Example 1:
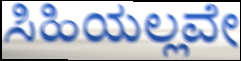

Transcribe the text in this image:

ಸಿಹಿಯಲ್ಲವೇ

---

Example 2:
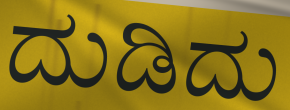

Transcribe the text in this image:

ದುಡಿದು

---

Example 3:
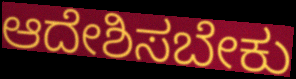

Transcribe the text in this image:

ಆದೇಶಿಸಬೇಕು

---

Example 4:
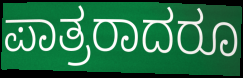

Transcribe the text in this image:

ಪಾತ್ರರಾದರೂ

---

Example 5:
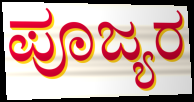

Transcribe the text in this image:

ಪೂಜ್ಯರ